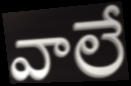
వాలే